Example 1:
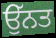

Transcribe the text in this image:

ਉੱਨਤ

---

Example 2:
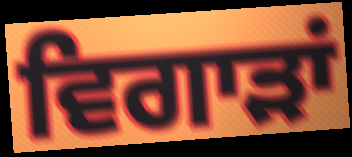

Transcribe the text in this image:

ਵਿਗਾੜਾਂ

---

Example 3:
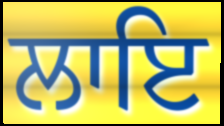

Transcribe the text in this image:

ਲਾਇ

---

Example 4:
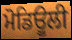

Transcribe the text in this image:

ਮੋਡਿਊਲੀ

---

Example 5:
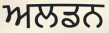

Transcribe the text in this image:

ਅਲਡਨ